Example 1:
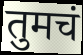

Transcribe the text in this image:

तुमचं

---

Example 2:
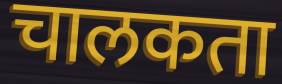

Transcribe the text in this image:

चालकता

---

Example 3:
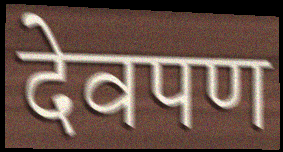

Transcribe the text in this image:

देवपण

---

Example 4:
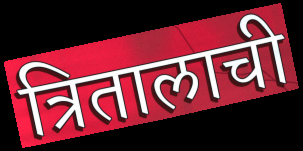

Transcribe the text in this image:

त्रितालाची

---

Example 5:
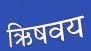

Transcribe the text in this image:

ऋिषवय